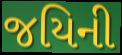
જયિની